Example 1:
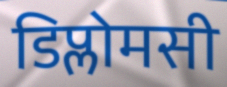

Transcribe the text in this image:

डिप्लोमसी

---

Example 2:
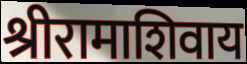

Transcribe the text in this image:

श्रीरामाशिवाय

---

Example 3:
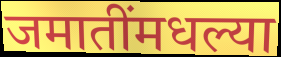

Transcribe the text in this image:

जमातींमधल्या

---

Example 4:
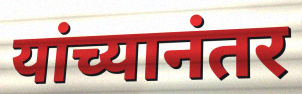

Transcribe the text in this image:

यांच्यानंतर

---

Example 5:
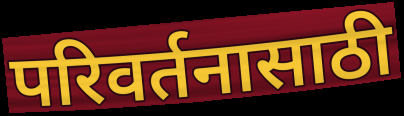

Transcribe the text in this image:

परिवर्तनासाठी